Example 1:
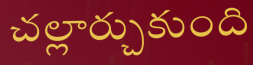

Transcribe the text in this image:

చల్లార్చుకుంది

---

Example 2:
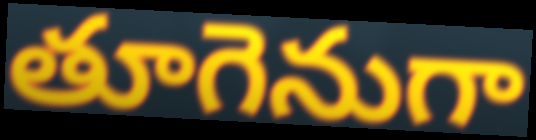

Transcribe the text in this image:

తూగెనుగా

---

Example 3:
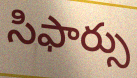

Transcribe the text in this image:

సిఫార్సు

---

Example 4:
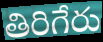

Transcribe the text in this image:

తిరిగేరు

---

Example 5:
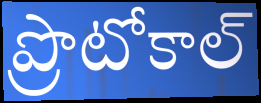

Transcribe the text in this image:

ప్రొటోకాల్